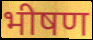
भीषण